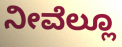
ನೀವೆಲ್ಲೂ